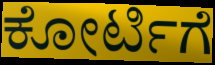
ಕೋರ್ಟಿಗೆ